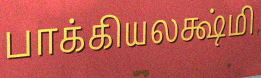
பாக்கியலக்ஷ்மி